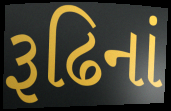
રૂઢિનાં